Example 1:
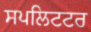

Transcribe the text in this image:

ਸਪਲਿਟਟਰ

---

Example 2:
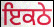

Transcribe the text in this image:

ਇਕਠੇ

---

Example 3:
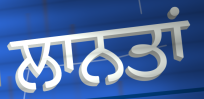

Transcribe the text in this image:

ਲਾਨਤਾਂ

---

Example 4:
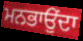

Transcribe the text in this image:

ਮਨਭਾਉਂਦਾ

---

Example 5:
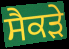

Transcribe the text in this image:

ਸੈਕੜੇ